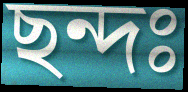
ছন্দঃ